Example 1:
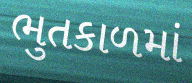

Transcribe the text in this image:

ભુતકાળમાં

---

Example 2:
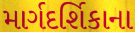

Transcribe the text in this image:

માર્ગદર્શિકાના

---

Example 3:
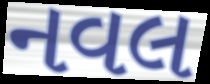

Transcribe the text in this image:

નવલ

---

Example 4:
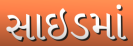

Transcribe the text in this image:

સાઇડમાં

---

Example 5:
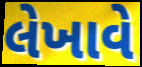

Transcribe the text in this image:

લેખાવે